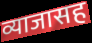
व्याजासह